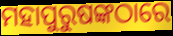
ମହାପୁରୁଷଙ୍କଠାରେ